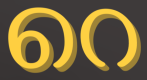
റെ